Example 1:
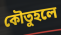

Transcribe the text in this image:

কৌতুহলে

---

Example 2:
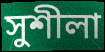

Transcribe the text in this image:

সুশীলা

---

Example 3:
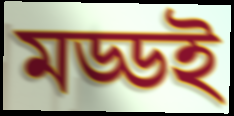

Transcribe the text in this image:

মড্ডই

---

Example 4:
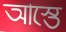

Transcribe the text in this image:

আস্তে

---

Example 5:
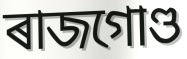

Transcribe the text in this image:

ৰাজগোণ্ড